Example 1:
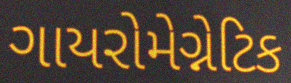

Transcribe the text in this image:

ગાયરોમેગ્નેટિક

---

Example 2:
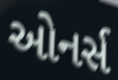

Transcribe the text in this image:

ઓનર્સ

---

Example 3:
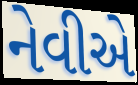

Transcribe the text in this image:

નેવીએ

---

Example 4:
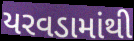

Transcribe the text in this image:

યરવડામાંથી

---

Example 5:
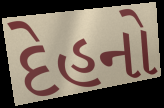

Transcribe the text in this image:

દેહનો